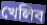
খেলিব